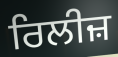
ਰਿਲੀਜ਼